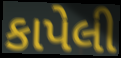
કાપેલી